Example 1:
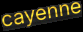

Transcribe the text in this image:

cayenne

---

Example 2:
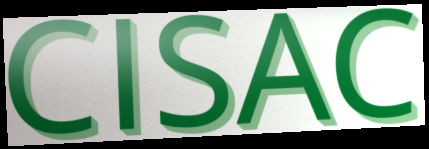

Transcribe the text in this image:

CISAC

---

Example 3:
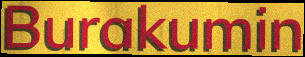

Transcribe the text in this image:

Burakumin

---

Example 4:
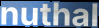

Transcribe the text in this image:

nuthal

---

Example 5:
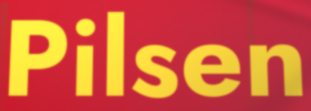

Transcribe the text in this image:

Pilsen